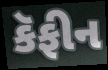
કૅફીન